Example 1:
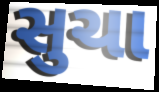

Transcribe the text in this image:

સુચા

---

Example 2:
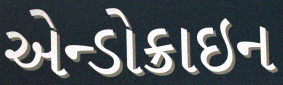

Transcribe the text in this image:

એન્ડોક્રાઇન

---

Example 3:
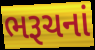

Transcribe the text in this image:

ભરૂચનાં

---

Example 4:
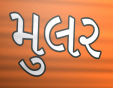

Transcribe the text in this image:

મુલર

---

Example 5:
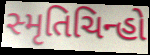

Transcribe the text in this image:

સ્મૃતિચિન્હો